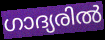
ഗാദ്യരിൽ